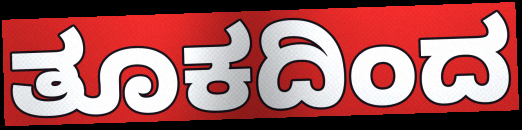
ತೂಕದಿಂದ